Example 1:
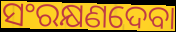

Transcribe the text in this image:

ସଂରକ୍ଷଣଦେବା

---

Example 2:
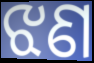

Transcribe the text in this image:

ଝଣ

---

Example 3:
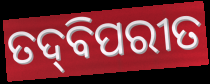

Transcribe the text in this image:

ତଦ୍‍ବିପରୀତ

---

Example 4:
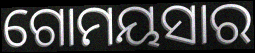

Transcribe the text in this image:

ଗୋମୟସାର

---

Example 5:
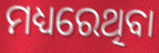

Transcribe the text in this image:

ମଧ୍ୟରେଥିବା